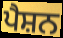
ਪੈਸ਼ਨ